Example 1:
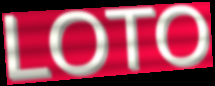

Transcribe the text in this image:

LOTO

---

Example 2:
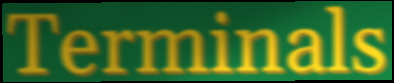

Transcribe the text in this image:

Terminals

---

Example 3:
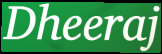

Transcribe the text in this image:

Dheeraj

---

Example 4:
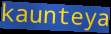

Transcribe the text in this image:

kaunteya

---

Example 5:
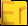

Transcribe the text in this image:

Er